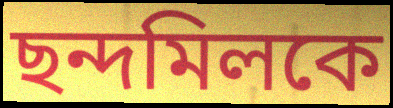
ছন্দমিলকে